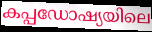
കപ്പഡോഷ്യയിലെ